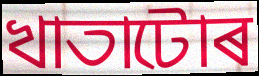
খাতাটোৰ